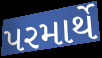
પરમાર્થે